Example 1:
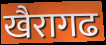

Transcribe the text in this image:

खैरागढ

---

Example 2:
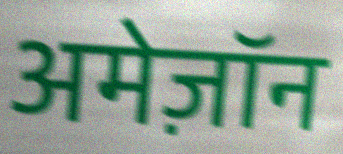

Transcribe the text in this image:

अमेज़ॉन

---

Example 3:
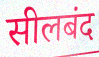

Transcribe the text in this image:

सीलबंद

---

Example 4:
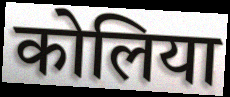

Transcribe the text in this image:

कोलिया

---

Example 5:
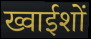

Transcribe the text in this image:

ख्वाईशों